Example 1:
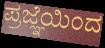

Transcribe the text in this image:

ಪ್ರಜ್ಞೆಯಿಂದ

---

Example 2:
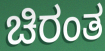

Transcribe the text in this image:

ಚಿರಂತ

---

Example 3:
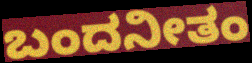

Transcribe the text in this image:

ಬಂದನೀತಂ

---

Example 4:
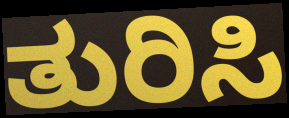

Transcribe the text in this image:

ತುರಿಸಿ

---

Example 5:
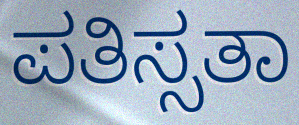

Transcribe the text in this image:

ಪತಿಸ್ಸತಾ